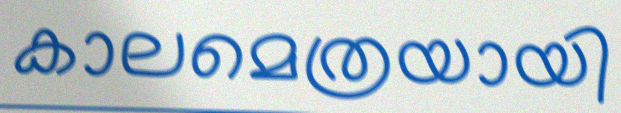
കാലമെത്രയായി